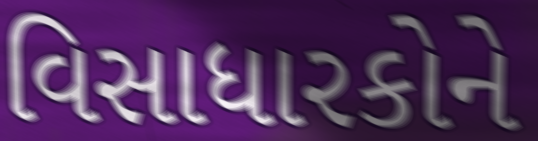
વિસાધારકોને